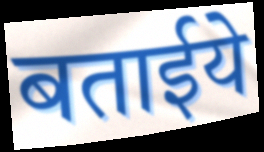
बताईये